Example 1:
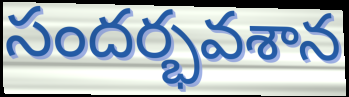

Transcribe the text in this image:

సందర్భవశాన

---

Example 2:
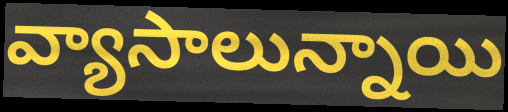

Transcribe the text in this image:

వ్యాసాలున్నాయి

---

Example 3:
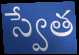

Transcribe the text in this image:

స్వేత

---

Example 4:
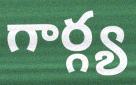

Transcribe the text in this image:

గార్గ్య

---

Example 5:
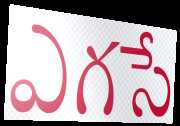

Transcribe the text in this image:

ఎగసే